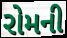
રોમની